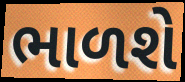
ભાળશે